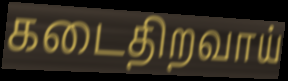
கடைதிறவாய்